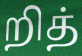
றித்